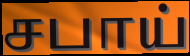
சபாய்